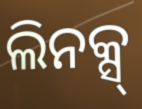
ଲିନକ୍ସ୍